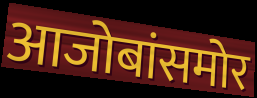
आजोबांसमोर